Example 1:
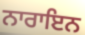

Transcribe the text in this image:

ਨਾਰਾਇਨ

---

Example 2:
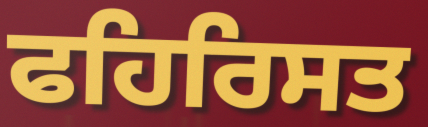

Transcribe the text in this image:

ਫਹਿਰਿਸਤ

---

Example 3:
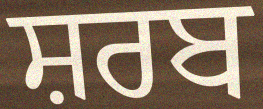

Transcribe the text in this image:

ਸ਼ਰਬ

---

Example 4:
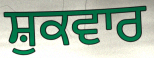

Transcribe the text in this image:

ਸ਼ੁਕਵਾਰ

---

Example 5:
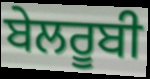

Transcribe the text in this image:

ਬੇਲਰੂਬੀ